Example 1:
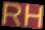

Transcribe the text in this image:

RH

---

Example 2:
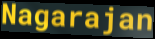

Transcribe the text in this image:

Nagarajan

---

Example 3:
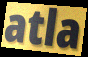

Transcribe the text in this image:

atla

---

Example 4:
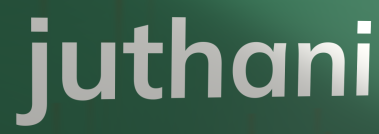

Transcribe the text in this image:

juthani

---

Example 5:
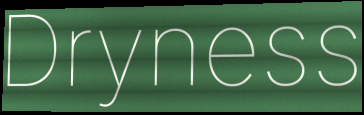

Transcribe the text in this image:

Dryness